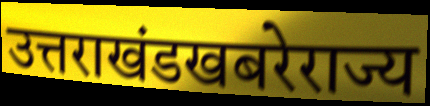
उत्तराखंडखबरेराज्य